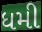
ધમી